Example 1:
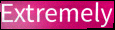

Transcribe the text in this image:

Extremely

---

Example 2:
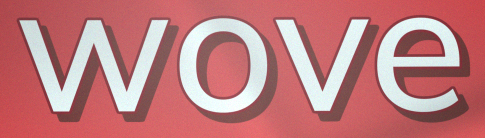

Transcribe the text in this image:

wove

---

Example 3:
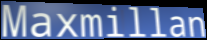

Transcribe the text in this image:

Maxmillan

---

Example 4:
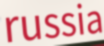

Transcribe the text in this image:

russia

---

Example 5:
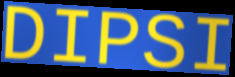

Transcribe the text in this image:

DIPSI